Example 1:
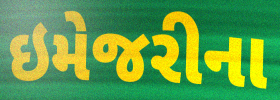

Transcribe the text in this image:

ઇમેજરીના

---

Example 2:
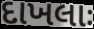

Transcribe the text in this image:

દાખલાઃ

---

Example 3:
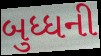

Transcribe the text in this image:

બુધ્ધની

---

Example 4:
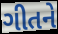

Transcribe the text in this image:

ગીતને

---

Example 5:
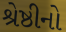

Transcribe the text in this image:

શ્રેષ્ઠીનો